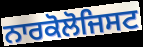
ਨਾਰਕੋਲੋਜਿਸਟ